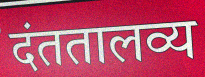
दंततालव्य